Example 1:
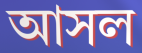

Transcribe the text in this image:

আসল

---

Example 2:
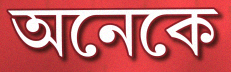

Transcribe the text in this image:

অনেকে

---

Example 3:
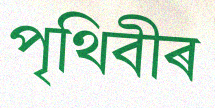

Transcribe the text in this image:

পৃথিবীৰ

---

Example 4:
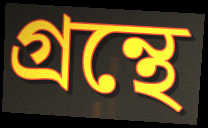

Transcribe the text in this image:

গ্ৰন্থে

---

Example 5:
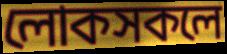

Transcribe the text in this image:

লোকসকলে